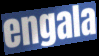
engala